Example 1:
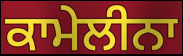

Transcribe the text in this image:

ਕਾਮੇਲੀਨਾ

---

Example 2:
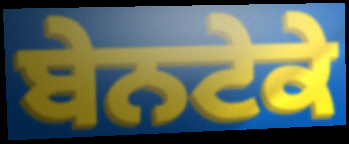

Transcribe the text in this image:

ਬੇਨਟੇਕੇ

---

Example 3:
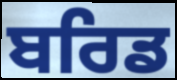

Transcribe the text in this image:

ਬਰਿਡ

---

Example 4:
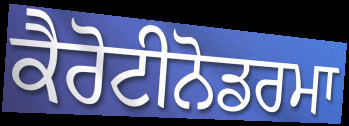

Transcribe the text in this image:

ਕੈਰੋਟੀਨੋਡਰਮਾ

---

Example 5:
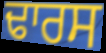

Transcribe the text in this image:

ਢਾਰਸ